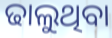
ଢାଲୁଥିବା